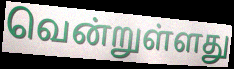
வென்றுள்ளது